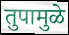
तुपामुळे